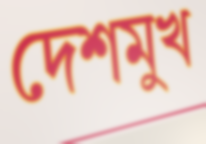
দেশমুখ